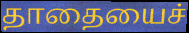
தாதையைச்